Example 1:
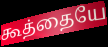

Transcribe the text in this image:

கூத்தையே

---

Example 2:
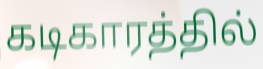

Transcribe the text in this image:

கடிகாரத்தில்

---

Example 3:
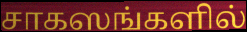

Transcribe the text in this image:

சாகஸங்களில்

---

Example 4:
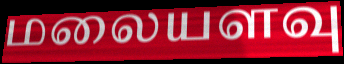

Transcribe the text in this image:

மலையளவு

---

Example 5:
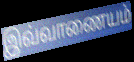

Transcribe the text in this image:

இவ்வாணையம்